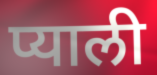
प्याली